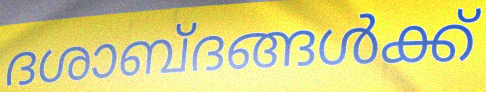
ദശാബ്ദങ്ങൾക്ക്